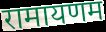
रामायणम